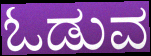
ಓಡುವ